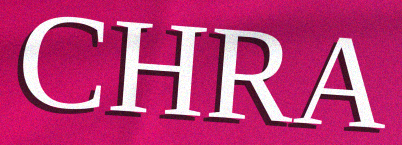
CHRA